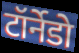
टॉर्नेडो